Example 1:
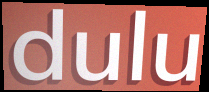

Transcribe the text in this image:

dulu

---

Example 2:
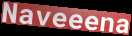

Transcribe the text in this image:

Naveeena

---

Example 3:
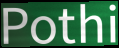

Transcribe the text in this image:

Pothi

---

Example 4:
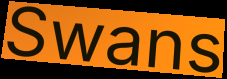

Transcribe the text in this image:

Swans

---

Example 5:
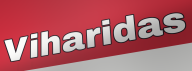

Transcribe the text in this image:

Viharidas